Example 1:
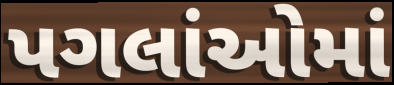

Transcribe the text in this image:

પગલાંઓમાં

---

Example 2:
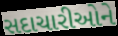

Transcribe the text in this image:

સદાચારીઓને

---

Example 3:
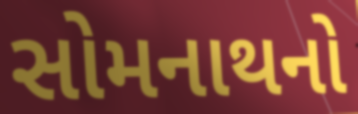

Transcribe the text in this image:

સોમનાથનો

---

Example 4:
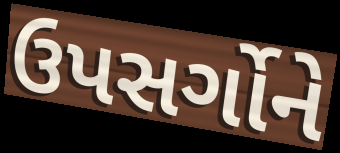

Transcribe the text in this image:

ઉપસર્ગોને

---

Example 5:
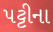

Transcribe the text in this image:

પટ્ટીના